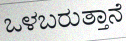
ಒಳಬರುತ್ತಾನೆ